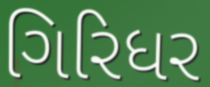
ગિરિધર